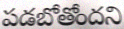
పడబోతోందని